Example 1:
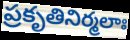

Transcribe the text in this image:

ప్రకృతినిర్మలాః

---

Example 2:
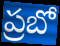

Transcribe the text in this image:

ప్రబో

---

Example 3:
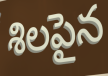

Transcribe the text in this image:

శిలపైన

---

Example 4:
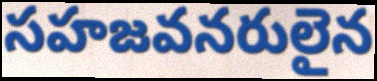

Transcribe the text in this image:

సహజవనరులైన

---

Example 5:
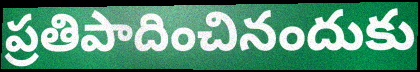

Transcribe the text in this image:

ప్రతిపాదించినందుకు